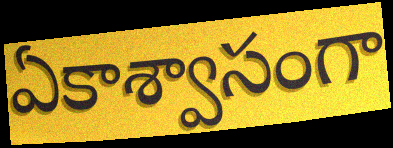
ఏకాశ్వాసంగా